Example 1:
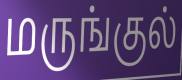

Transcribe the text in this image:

மருங்குல்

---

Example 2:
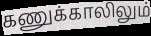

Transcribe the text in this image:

கணுக்காலிலும்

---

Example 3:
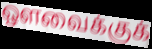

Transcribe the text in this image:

ஔவைக்குக்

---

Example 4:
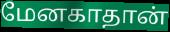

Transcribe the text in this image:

மேனகாதான்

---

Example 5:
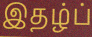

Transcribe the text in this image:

இதழ்ப்